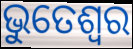
ଭୁତେଶ୍ୱର